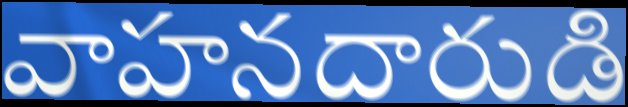
వాహనదారుడి